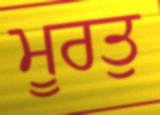
ਮੂਰਤੁ